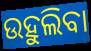
ଉହୁଲିବା